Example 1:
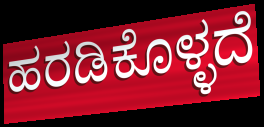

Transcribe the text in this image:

ಹರಡಿಕೊಳ್ಳದೆ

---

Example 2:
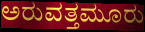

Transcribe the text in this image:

ಅರುವತ್ತಮೂರು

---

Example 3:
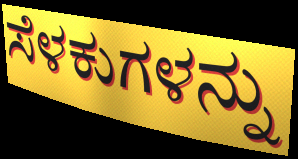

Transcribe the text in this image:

ಸೆಳಕುಗಳನ್ನು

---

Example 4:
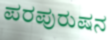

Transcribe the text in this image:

ಪರಪುರುಷನ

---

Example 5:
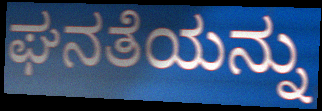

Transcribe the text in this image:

ಘನತೆಯನ್ನು